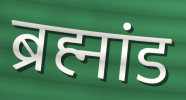
ब्रह्मांड